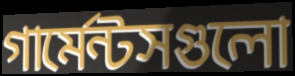
গার্মেন্টসগুলো